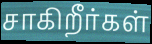
சாகிறீர்கள்